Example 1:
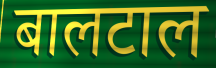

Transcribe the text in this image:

बालटाल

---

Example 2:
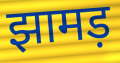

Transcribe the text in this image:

झामड़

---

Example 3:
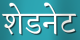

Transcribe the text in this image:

शेडनेट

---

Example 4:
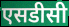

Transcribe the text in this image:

एसडीसी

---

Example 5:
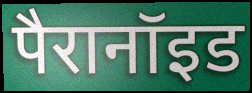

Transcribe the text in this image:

पैरानॉइड